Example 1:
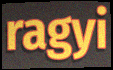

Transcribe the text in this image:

ragyi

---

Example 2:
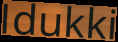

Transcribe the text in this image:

Idukki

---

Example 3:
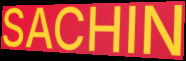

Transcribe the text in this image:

SACHIN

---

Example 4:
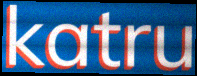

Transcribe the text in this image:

katru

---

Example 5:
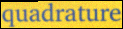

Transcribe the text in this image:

quadrature